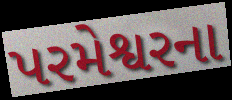
પરમેશ્વરના